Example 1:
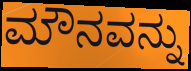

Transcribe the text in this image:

ಮೌನವನ್ನು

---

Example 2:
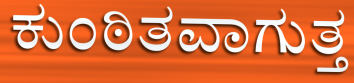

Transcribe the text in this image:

ಕುಂಠಿತವಾಗುತ್ತ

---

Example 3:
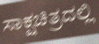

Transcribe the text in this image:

ಸಾಕ್ಷಚಿತ್ರದಲ್ಲಿ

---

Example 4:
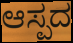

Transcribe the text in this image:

ಆಸ್ಪದ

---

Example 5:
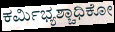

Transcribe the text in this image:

ಕರ್ಮಿಭ್ಯಶ್ಚಾಧಿಕೋ